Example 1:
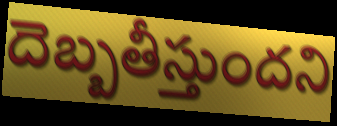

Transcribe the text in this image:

దెబ్బతీస్తుందని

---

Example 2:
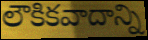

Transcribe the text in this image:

లౌకికవాదాన్ని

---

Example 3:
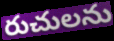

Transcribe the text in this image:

రుచులను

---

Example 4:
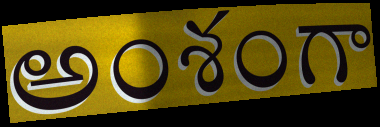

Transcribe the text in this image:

అంశంగా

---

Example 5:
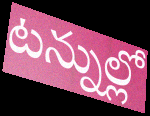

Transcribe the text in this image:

టన్నుల్లో